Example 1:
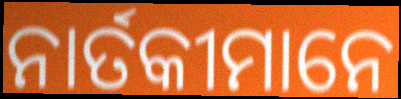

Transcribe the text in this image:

ନାର୍ତକୀମାନେ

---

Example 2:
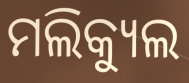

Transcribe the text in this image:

ମଲିକ୍ୟୁଲ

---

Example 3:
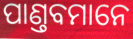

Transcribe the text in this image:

ପାଣ୍ତବମାନେ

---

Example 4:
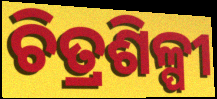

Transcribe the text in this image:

ଚିତ୍ରଶିଳ୍ପୀ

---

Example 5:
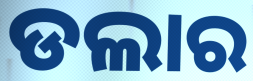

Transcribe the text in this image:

ଡଲାର